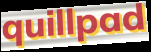
quillpad